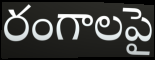
రంగాలపై